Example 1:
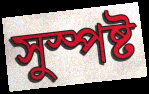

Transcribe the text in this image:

সুস্পষ্ট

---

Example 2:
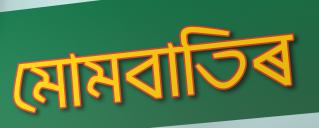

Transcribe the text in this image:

মোমবাতিৰ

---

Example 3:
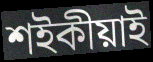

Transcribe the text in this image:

শইকীয়াই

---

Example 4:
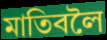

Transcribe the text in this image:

মাতিবলৈ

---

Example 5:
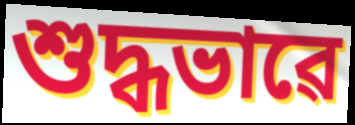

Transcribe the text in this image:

শুদ্ধভাৱে